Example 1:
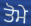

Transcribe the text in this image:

ਤੋਮੇ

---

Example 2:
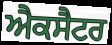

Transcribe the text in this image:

ਐਕਸੈਟਰ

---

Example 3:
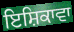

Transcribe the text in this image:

ਇਸ਼ਿਕਾਵਾ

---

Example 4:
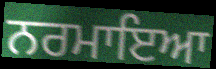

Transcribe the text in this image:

ਨਰਮਾਇਆ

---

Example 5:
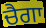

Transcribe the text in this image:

ਚੈਗਾ